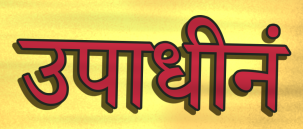
उपाधीनं